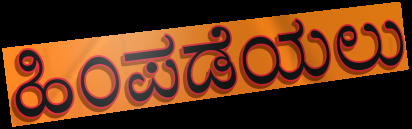
ಹಿಂಪಡೆಯಲು